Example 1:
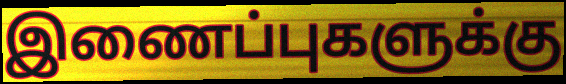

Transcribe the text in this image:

இணைப்புகளுக்கு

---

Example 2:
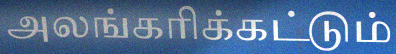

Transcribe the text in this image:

அலங்கரிக்கட்டும்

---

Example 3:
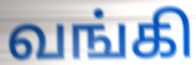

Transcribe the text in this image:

வங்கி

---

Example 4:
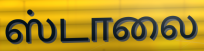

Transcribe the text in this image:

ஸ்டாலை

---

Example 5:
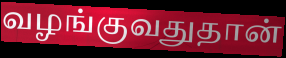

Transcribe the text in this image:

வழங்குவதுதான்